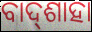
ବାଦ୍‌ଶାହା